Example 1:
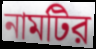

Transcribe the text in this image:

নামটির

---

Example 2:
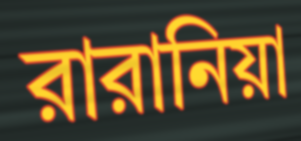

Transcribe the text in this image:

রারানিয়া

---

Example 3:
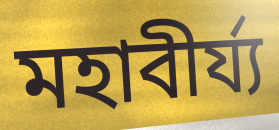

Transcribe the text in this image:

মহাবীর্য্য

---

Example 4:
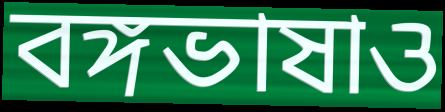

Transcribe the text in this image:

বঙ্গভাষাও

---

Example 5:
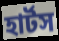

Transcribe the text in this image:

হার্টস